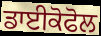
ਡਾਈਕੋਫੋਲ